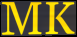
MK